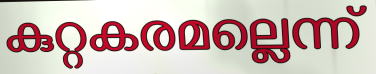
കുറ്റകരമല്ലെന്ന്